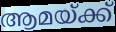
ആമയ്ക്ക്